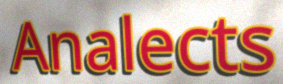
Analects